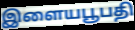
இளையபூபதி